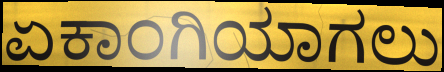
ಏಕಾಂಗಿಯಾಗಲು